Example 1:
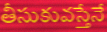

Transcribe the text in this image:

తీసుకువస్తేనే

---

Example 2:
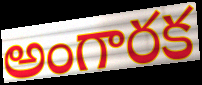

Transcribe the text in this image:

అంగారక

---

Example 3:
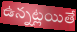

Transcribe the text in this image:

ఉన్నట్లయితే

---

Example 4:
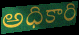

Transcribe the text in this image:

అధికారి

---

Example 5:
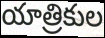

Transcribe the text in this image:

యాత్రికుల